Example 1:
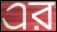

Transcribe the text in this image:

এর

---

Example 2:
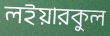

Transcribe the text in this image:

লইয়ারকুল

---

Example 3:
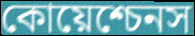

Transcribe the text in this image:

কোয়েশ্চেনস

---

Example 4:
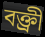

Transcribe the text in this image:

বক্ত্রী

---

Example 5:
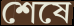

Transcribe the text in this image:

শেষে